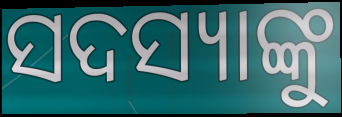
ସଦସ୍ୟାଙ୍କୁ